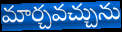
మార్చవచ్చును